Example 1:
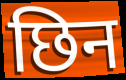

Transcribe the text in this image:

छिन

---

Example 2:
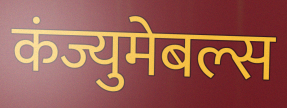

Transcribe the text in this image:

कंज्युमेबल्स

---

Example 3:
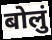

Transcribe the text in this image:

बोलुं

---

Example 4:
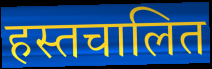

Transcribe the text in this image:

हस्तचालित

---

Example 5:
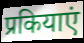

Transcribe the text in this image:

प्रकियाएं